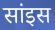
सांइस